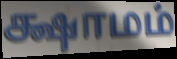
க்ஷாமம்